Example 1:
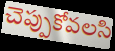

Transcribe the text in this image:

చెప్పుకోవలసి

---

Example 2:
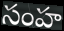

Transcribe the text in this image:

సంహ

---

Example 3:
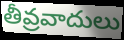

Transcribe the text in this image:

తీవ్రవాదులు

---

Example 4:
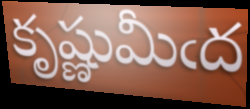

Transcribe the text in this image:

కృష్ణుమీఁద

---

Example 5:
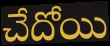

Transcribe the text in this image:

చేదోయి